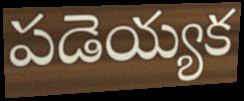
పడెయ్యక